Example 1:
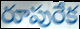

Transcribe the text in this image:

రూపురేక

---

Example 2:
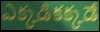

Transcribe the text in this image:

ఎక్కడికక్కడే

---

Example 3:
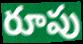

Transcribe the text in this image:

రూపు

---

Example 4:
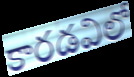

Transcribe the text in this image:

కారడవిలో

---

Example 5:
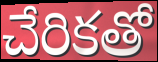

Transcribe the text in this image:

చేరికతో